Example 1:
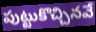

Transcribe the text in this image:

పుట్టుకొచ్చినవే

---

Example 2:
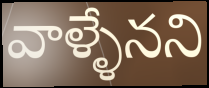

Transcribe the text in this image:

వాళ్ళేనని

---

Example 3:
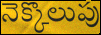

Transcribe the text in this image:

నెక్కొలుపు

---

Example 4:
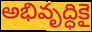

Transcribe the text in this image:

అభివృద్ధికై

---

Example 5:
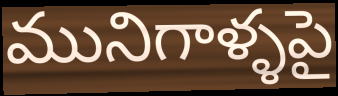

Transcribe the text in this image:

మునిగాళ్ళపై